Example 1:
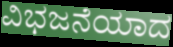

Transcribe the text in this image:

ವಿಭಜನೆಯಾದ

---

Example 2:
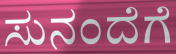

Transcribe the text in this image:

ಸುನಂದೆಗೆ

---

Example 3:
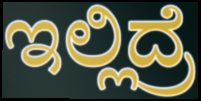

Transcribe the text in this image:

ಇಲ್ಲಿದ್ರೆ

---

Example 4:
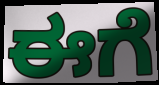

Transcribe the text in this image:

ಈಗೆ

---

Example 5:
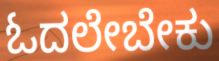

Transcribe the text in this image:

ಓದಲೇಬೇಕು